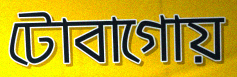
টোবাগোয়